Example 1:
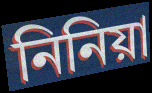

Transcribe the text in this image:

নিনিয়া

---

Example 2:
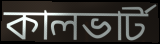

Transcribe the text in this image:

কালভার্ট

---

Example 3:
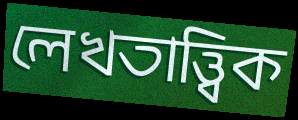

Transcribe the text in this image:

লেখতাত্ত্বিক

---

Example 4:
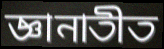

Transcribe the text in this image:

জ্ঞানাতীত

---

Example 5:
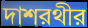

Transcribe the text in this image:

দাশরথীর